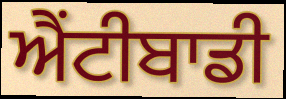
ਐਂਟੀਬਾਡੀ